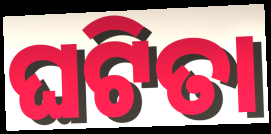
ଘଟିତା